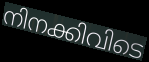
നിനക്കിവിടെ